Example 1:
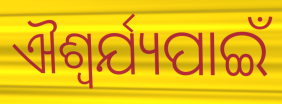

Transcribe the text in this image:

ଐଶ୍ୱର୍ଯ୍ୟପାଇଁ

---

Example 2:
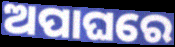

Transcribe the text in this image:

ଅପାଘରେ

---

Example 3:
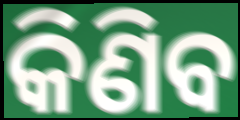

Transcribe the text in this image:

କିଣିବ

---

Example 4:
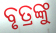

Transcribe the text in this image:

ବୃତ୍ରଙ୍କୁ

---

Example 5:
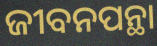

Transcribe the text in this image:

ଜୀବନପନ୍ଥା